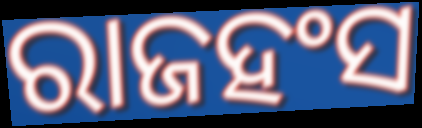
ରାଜହଂସ